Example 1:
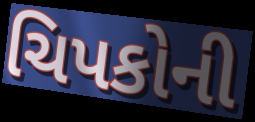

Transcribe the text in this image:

ચિપકોની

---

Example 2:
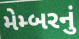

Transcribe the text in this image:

મેમ્બરનું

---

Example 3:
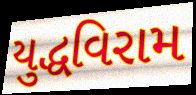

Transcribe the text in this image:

યુદ્ધવિરામ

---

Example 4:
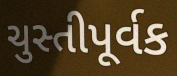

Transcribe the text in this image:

ચુસ્તીપૂર્વક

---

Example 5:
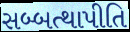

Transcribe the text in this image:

સબ્બત્થાપીતિ